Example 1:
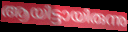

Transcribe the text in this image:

ആയിട്ടായിരുന്നു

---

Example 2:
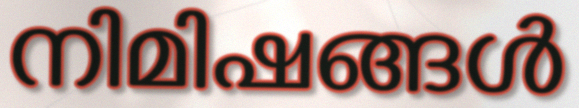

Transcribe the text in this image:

നിമിഷങ്ങൾ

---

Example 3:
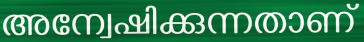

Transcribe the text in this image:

അന്വേഷിക്കുന്നതാണ്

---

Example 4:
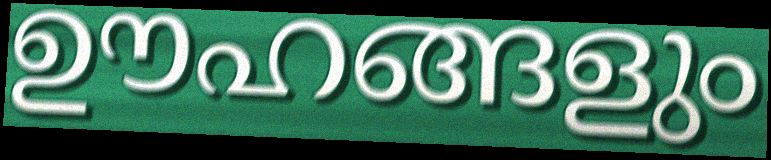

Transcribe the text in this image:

ഊഹങ്ങളും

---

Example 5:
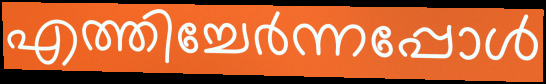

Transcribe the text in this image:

എത്തിച്ചേർന്നപ്പോൾ